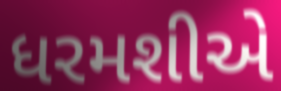
ધરમશીએ